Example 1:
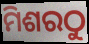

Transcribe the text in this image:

ମିଶରଠୁ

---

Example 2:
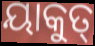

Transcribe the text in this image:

ୟାକୁତ୍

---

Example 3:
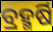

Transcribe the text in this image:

ବ୍ରହ୍ମର୍ଷି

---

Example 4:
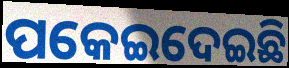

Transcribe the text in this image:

ପକେଇଦେଇଛି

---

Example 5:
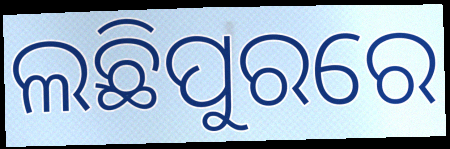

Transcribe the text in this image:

ଲଛିପୁରରେ